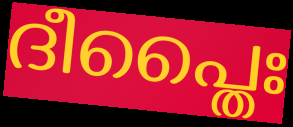
ദീപ്തൈഃ